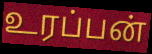
உரப்பன்